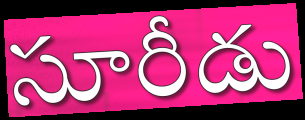
సూరీడు